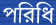
পরিধি